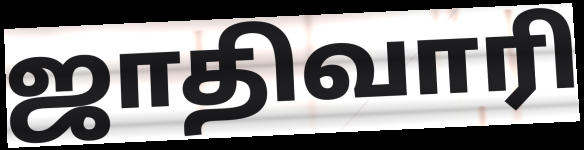
ஜாதிவாரி